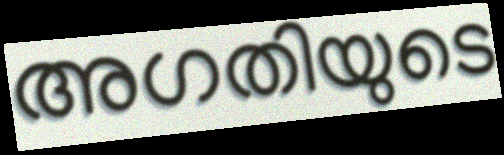
അഗതിയുടെ